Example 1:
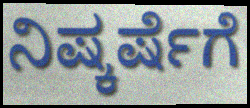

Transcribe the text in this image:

ನಿಷ್ಕರ್ಷೆಗೆ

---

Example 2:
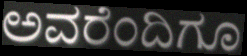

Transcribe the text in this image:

ಅವರೆಂದಿಗೂ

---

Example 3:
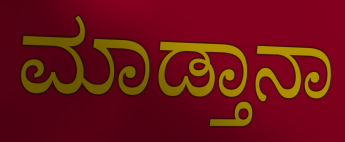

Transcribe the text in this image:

ಮಾಡ್ತಾನಾ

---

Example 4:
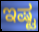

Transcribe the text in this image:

ಇಷ್ಟ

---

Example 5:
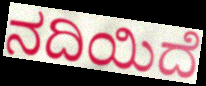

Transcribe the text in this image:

ನದಿಯಿದೆ